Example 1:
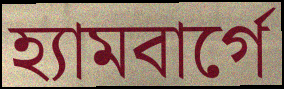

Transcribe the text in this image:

হ্যামবার্গে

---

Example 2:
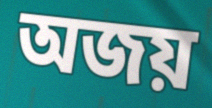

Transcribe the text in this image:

অজয়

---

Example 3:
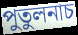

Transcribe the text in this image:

পুতুলনাচ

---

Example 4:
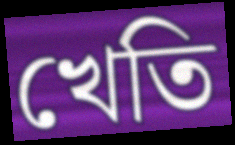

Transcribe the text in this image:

খেতি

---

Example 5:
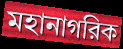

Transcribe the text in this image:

মহানাগরিক